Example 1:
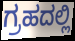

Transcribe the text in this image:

ಗ್ರಹದಲ್ಲಿ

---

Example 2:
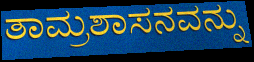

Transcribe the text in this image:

ತಾಮ್ರಶಾಸನವನ್ನು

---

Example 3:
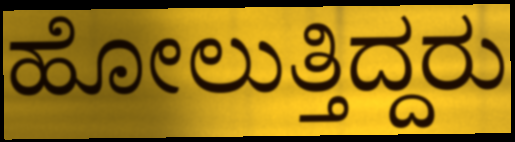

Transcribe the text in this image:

ಹೋಲುತ್ತಿದ್ದರು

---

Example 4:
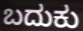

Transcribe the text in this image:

ಬದುಕು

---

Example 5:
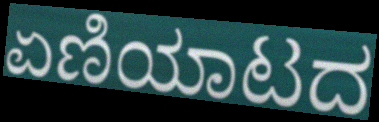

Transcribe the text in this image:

ಏಣಿಯಾಟದ